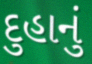
દુહાનું